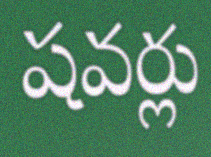
షవర్లు